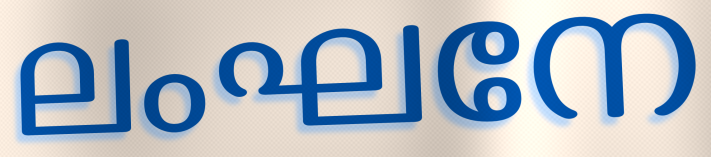
ലംഘനേ